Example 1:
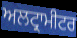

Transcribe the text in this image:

ਅਲਟ੍ਰਾਮੀਟਰ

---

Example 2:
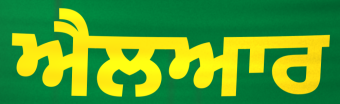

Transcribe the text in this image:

ਐਲਆਰ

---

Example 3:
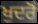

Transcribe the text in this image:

ਖੁਦਰੋਂ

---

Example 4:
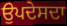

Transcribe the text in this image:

ਉਪਦੇਸਦਾ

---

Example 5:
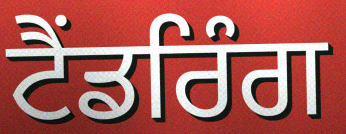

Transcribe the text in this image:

ਟੈਂਡਰਿੰਗ